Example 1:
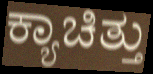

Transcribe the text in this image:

ಕ್ಯಾಚಿತ್ತು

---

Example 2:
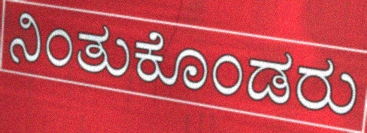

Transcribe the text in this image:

ನಿಂತುಕೊಂಡರು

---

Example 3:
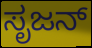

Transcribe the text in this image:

ಸೃಜನ್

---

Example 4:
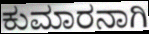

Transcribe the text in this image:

ಕುಮಾರನಾಗಿ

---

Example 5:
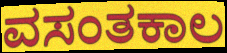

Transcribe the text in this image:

ವಸಂತಕಾಲ